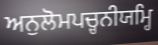
ਅਨੁਲੋਮਪਚ੍ਚਨੀਯਮ੍ਹਿ